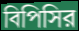
বিপিসির